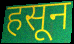
हसून